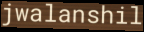
jwalanshil